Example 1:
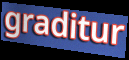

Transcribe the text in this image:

graditur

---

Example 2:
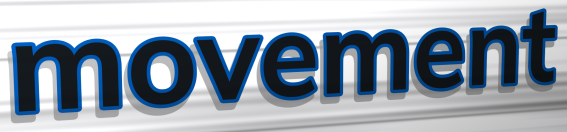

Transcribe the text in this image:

movement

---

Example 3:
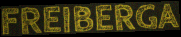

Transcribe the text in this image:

FREIBERGA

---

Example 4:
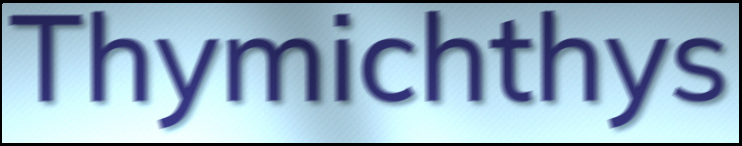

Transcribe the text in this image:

Thymichthys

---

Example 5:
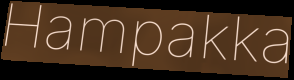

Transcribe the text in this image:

Hampakka